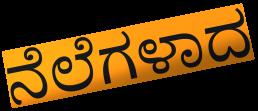
ನೆಲೆಗಳಾದ